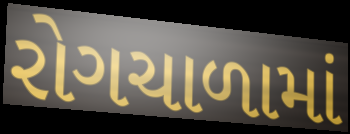
રોગચાળામાં